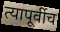
त्यापूर्वीच